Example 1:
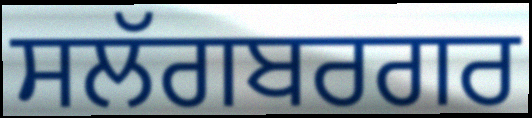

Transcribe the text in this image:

ਸਲੱਗਬਰਗਰ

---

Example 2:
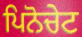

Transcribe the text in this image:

ਪਿਨੋਚੇਟ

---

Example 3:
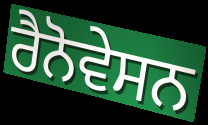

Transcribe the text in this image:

ਰੈਨੋਵੇਸਨ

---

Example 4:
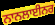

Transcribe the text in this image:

ਨਾਨਲਾਈਨਰ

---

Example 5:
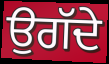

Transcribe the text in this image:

ਉਗੱਦੇ